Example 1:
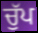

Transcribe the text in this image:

ਚੁੱਪ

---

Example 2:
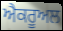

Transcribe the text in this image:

ਐਕਰੂਅਲ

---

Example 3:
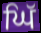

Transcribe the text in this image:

ਘਿੱ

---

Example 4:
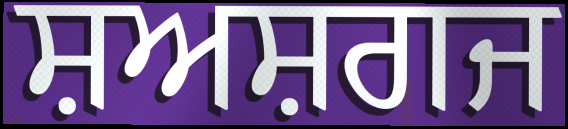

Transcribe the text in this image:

ਸ਼ਅਸ਼ਗਜ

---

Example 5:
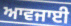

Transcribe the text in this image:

ਆਵਜਾਈ